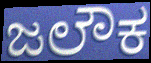
ಜಲೌಕ